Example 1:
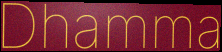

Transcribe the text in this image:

Dhamma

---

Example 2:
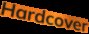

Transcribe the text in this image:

Hardcover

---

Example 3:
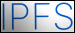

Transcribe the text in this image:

IPFS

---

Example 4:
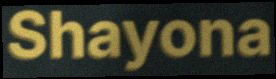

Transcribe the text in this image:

Shayona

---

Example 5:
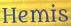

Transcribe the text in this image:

Hemis